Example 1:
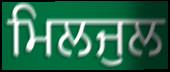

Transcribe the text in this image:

ਮਿਲਜੁਲ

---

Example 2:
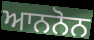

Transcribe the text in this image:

ਆਨਨੋਨ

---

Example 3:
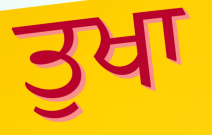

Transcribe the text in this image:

ਤੁਖਾ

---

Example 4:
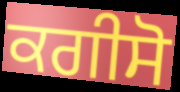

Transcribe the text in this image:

ਕਗੀਸੋ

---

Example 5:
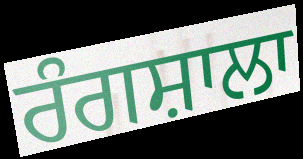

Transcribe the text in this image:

ਰੰਗਸ਼ਾਲਾ